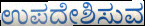
ಉಪದೇಶಿಸುವ